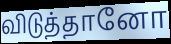
விடுத்தானோ